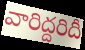
వారిద్దరిదీ